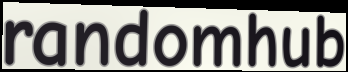
randomhub